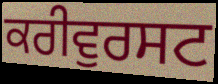
ਕਰੀਵੁਰਸਟ